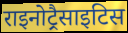
राइनोट्रैसाइटिस